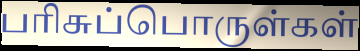
பரிசுப்பொருள்கள்